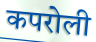
कपरोली